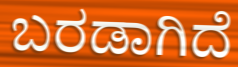
ಬರಡಾಗಿದೆ